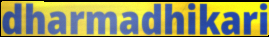
dharmadhikari